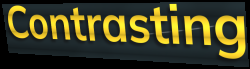
Contrasting